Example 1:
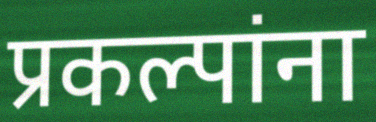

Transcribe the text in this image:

प्रकल्पांना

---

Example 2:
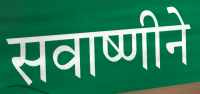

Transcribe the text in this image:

सवाष्णीने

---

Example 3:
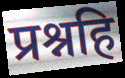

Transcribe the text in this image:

प्रश्नहि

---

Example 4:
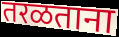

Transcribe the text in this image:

तरळताना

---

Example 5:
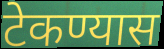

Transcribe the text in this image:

टेकण्यास